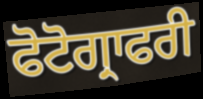
ਫੋਟੋਗ੍ਰਾਫਰੀ